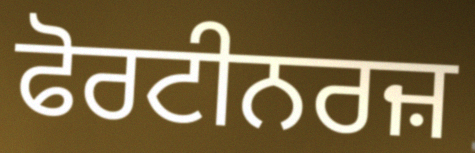
ਫੋਰਟੀਨਰਜ਼